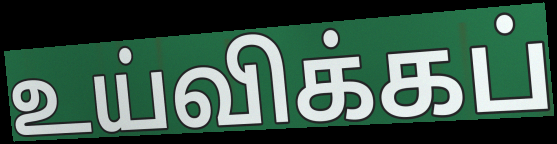
உய்விக்கப்